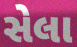
સેલા